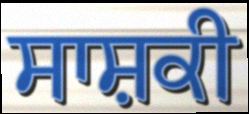
ਸਾਸ਼ਕੀ